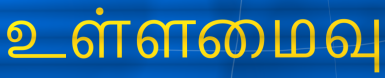
உள்ளமைவு